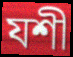
যশী